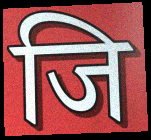
जि